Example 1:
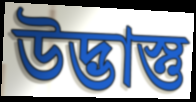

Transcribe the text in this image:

উদ্ভাস্তু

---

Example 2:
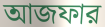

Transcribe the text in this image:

আজফার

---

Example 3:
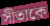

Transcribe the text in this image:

সীতাকে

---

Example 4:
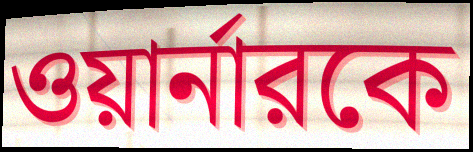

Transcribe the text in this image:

ওয়ার্নারকে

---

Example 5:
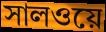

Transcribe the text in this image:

সালওয়ে